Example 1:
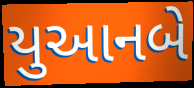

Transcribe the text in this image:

યુઆનબે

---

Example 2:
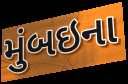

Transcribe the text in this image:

મુંબઇના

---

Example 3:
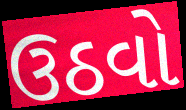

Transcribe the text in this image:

ઉઠવો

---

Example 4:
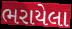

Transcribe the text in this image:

ભરાયેલા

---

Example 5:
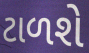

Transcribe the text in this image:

ટાળશે